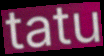
tatu